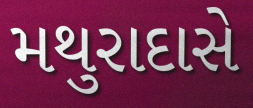
મથુરાદાસે